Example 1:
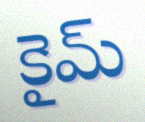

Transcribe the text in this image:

కైమ్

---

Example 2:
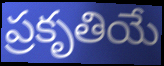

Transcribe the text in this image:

ప్రకృతియే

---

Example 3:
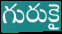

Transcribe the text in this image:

గురుకై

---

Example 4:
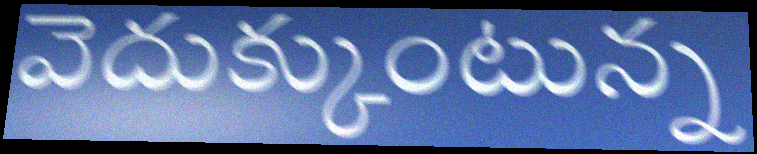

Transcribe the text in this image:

వెదుక్కుంటున్న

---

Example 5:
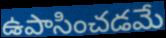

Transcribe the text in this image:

ఉపాసించడమే